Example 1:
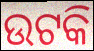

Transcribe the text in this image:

ଉଟକି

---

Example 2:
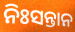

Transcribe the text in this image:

ନିଃସନ୍ତାନ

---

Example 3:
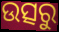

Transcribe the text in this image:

ଉତ୍ସରୁ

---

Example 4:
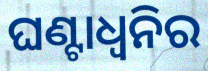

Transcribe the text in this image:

ଘଣ୍ଟାଧ୍ୱନିର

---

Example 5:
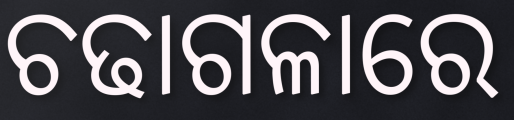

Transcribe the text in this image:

ଚଢାଗଳାରେ